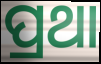
ପ୍ରଥା